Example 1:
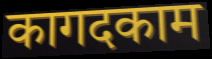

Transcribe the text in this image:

कागदकाम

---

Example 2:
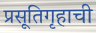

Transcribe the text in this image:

प्रसूतिगृहाची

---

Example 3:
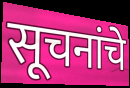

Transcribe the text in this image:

सूचनांचे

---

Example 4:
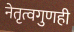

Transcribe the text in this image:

नेतृत्वगुणही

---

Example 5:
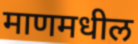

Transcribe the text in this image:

माणमधील